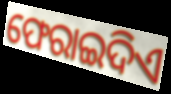
ଫେରାଇଦିଏ